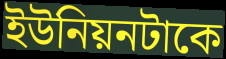
ইউনিয়নটাকে